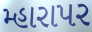
મ્હારાપર